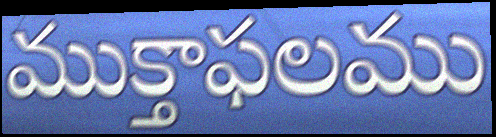
ముక్తాఫలము